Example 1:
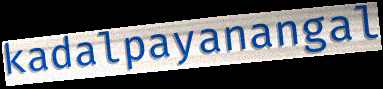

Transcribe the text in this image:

kadalpayanangal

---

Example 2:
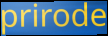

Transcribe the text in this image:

prirode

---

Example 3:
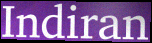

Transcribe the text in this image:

Indiran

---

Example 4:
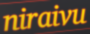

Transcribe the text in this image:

niraivu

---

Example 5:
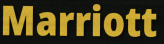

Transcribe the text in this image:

Marriott